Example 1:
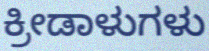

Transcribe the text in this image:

ಕ್ರೀಡಾಳುಗಳು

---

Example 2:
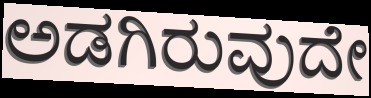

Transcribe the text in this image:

ಅಡಗಿರುವುದೇ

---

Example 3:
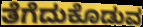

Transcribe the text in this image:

ತೆಗೆದುಕೊಡುವ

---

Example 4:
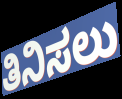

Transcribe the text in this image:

ತಿನಿಸಲು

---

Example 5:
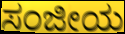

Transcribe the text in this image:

ಸಂಜೀಯ